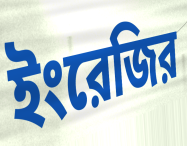
ইংরেজির